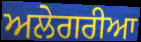
ਅਲੇਗਰੀਆ